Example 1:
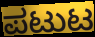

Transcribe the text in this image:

ಪಟುಟ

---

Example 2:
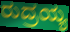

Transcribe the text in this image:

ರುದ್ರಯ್ಯ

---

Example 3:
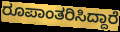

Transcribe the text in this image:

ರೂಪಾಂತರಿಸಿದ್ದಾರೆ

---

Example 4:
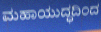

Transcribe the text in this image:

ಮಹಾಯುದ್ಧದಿಂದ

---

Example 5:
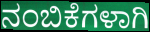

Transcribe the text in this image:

ನಂಬಿಕೆಗಳಾಗಿ